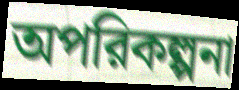
অপরিকল্পনা